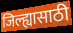
जिल्ह्यासाठी